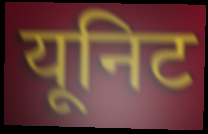
यूनिट